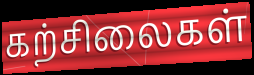
கற்சிலைகள்